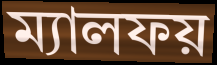
ম্যালফয়